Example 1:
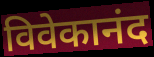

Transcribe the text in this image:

विवेकानंद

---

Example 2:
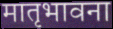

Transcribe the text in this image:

मातृभावना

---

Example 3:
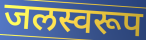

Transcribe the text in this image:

जलस्वरूप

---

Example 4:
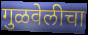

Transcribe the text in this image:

गुळवेलीचा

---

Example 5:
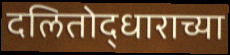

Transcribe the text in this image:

दलितोद्धाराच्या